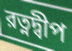
রত্নদ্বীপ